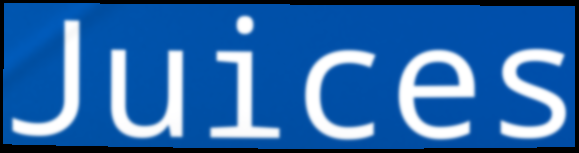
Juices